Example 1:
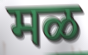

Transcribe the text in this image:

मळ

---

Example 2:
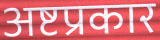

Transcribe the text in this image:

अष्टप्रकार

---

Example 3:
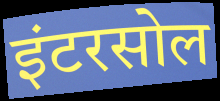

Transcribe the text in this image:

इंटरसोल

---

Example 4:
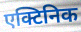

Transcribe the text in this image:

एक्टिनिक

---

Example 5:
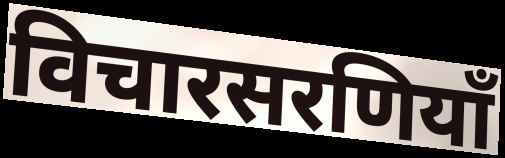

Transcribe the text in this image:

विचारसरणियाँ